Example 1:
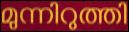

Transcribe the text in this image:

മുന്നിറുത്തി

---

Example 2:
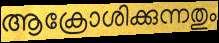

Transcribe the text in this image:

ആക്രോശിക്കുന്നതും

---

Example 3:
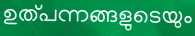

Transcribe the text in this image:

ഉത്പന്നങ്ങളുടെയും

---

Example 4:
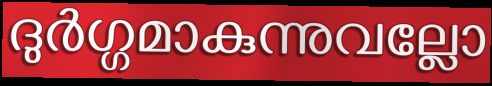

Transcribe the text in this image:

ദുർഗ്ഗമാകുന്നുവല്ലോ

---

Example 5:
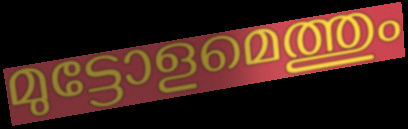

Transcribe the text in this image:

മുട്ടോളമെത്തും